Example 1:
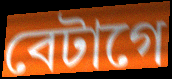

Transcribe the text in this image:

বেটাগে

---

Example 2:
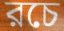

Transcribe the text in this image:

রচে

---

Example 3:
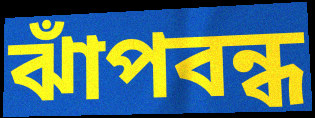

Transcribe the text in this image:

ঝাঁপবন্ধ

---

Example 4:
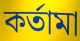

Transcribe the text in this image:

কর্তামা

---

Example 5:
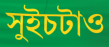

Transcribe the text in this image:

সুইচটাও